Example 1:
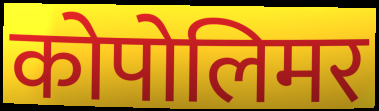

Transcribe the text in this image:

कोपोलिमर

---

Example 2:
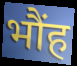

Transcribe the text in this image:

भौंह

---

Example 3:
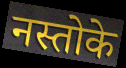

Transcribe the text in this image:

नस्तोके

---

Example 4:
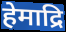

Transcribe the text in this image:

हेमाद्रि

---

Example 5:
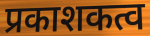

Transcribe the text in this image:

प्रकाशकत्व